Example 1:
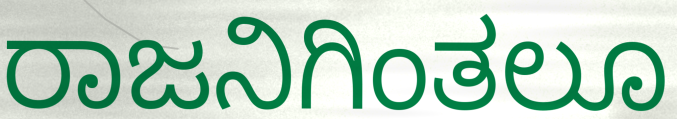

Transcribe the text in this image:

ರಾಜನಿಗಿಂತಲೂ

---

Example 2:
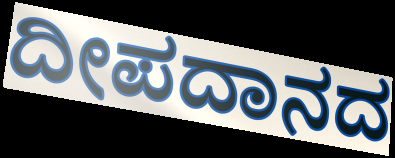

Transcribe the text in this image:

ದೀಪದಾನದ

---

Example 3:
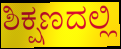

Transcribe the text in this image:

ಶಿಕ್ಷಣದಲ್ಲಿ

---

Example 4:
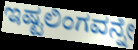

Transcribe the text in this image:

ಇಷ್ಟಲಿಂಗವನ್ನೇ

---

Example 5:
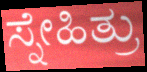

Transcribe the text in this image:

ಸ್ನೇಹಿತ್ರು